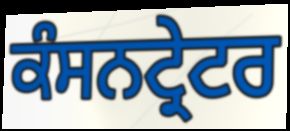
ਕੰਸਨਟ੍ਰੇਟਰ